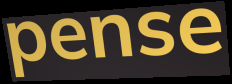
pense